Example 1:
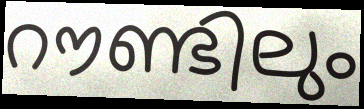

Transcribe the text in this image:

റൗണ്ടിലും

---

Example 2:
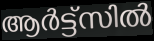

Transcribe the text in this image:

ആർട്ട്സിൽ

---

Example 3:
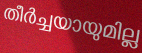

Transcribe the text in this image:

തീർച്ചയായുമില്ല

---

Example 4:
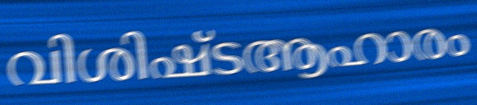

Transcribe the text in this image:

വിശിഷ്ടആഹാരം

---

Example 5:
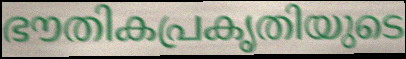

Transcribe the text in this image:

ഭൗതികപ്രകൃതിയുടെ